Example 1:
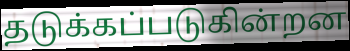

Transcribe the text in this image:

தடுக்கப்படுகின்றன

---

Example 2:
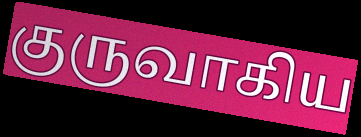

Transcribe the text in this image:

குருவாகிய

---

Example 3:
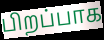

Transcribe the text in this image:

பிறப்பாக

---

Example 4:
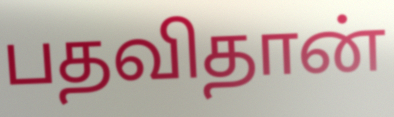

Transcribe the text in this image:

பதவிதான்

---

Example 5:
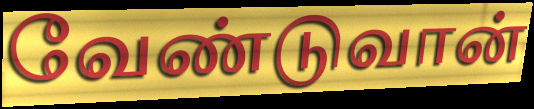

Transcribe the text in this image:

வேண்டுவான்